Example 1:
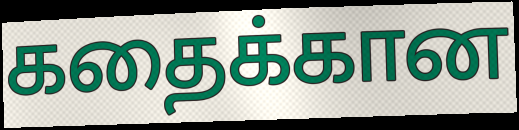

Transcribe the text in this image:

கதைக்கான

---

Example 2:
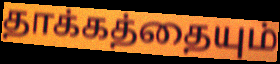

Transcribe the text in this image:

தாக்கத்தையும்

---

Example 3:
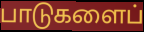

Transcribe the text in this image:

பாடுகளைப்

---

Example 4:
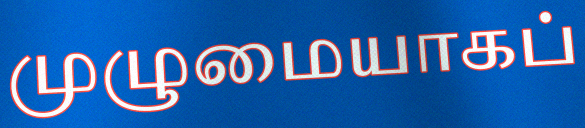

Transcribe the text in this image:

முழுமையாகப்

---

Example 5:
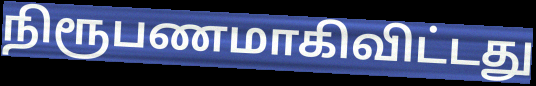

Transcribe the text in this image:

நிரூபணமாகிவிட்டது